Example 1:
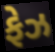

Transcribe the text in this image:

ફેઝ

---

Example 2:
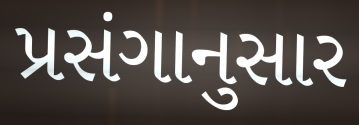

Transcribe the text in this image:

પ્રસંગાનુસાર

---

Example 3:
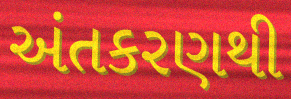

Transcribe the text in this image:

અંતકરણથી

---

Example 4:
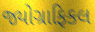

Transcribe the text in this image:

જ્યોગ્રાફિકલ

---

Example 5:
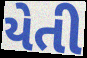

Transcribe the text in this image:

યેતી